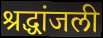
श्रद्धांजली